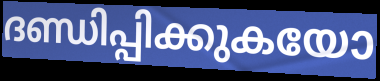
ദണ്ഡിപ്പിക്കുകയോ